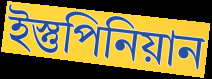
ইস্তুপিনিয়ান